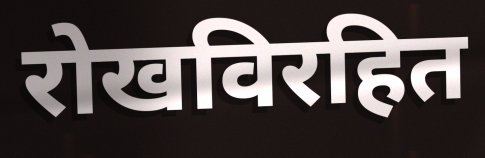
रोखविरहित